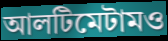
আলটিমেটামও